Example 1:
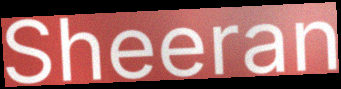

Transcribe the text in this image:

Sheeran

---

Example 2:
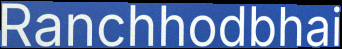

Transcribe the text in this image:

Ranchhodbhai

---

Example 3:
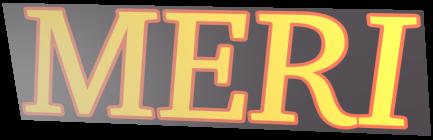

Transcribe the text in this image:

MERI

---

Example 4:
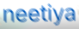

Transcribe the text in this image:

neetiya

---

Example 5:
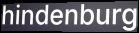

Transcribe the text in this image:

hindenburg